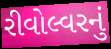
રીવોલ્વરનું